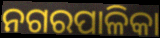
ନଗରପାଳିକା